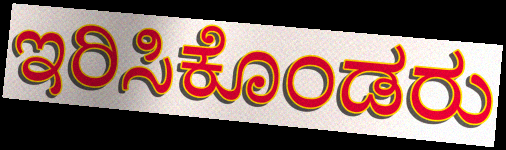
ಇರಿಸಿಕೊಂಡರು